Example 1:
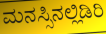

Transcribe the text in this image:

ಮನಸ್ಸಿನಲ್ಲಿಡಿರಿ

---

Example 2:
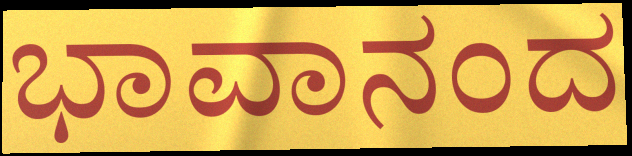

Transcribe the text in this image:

ಭಾವಾನಂದ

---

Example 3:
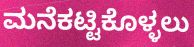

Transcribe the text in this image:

ಮನೆಕಟ್ಟಿಕೊಳ್ಳಲು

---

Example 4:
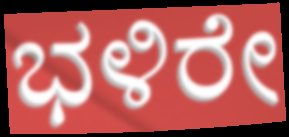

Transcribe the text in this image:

ಭಳಿರೇ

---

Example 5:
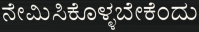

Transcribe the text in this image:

ನೇಮಿಸಿಕೊಳ್ಳಬೇಕೆಂದು